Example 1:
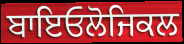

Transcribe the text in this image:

ਬਾਇਓਲੋਜਿਕਲ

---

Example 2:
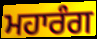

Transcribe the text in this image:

ਮਹਾਰੰਗ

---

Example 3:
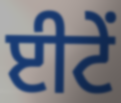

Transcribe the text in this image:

ਈਟੇਂ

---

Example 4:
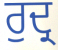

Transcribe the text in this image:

ਰੁਦ੍ਰ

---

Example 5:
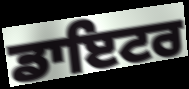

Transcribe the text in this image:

ਡਾਇਟਰ